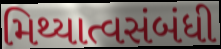
મિથ્યાત્વસંબંધી